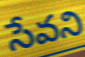
సేవని